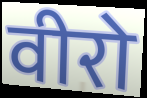
वीरो